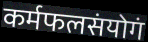
कर्मफलसंयोगं